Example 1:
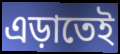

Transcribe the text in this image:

এড়াতেই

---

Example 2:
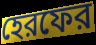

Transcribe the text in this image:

হেরফের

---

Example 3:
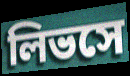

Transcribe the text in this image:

লিভসে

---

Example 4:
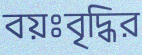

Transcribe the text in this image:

বয়ঃবৃদ্ধির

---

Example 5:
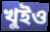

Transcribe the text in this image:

খুইও